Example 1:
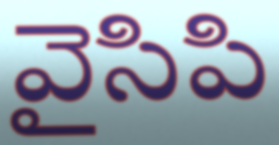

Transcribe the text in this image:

వైసిపి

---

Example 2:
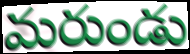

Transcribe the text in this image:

మరుండు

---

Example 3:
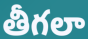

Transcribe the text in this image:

తీగలా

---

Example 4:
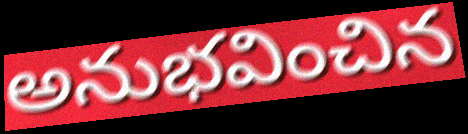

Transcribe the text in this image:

అనుభవించిన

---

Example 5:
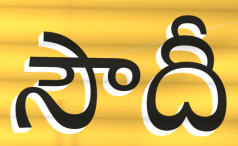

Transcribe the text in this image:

సౌదీ